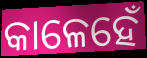
କାଳେହେଁ